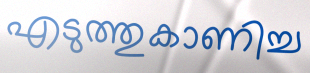
എടുത്തുകാണിച്ച